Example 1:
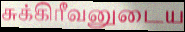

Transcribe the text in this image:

சுக்கிரீவனுடைய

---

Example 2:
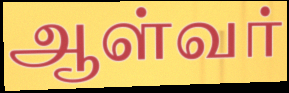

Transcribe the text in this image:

ஆள்வர்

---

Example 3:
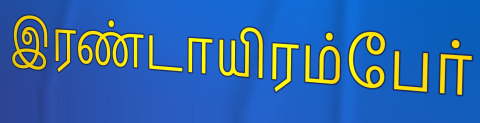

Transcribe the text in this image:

இரண்டாயிரம்பேர்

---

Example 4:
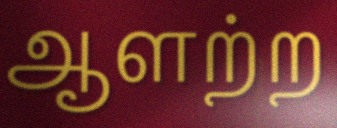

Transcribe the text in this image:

ஆளற்ற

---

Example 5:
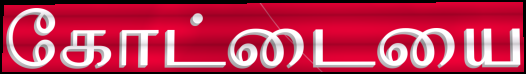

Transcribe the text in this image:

கோட்டையை